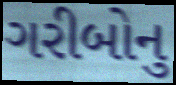
ગરીબોનુ